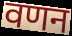
वणन